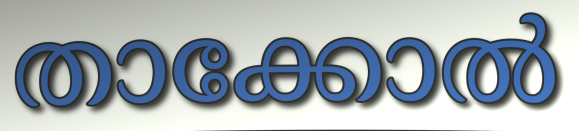
താക്കോൽ